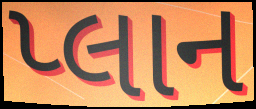
પ્લાન